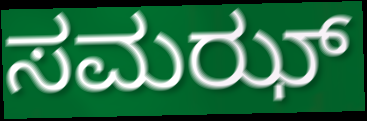
ಸಮಝ್